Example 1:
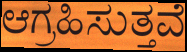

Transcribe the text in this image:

ಆಗ್ರಹಿಸುತ್ತವೆ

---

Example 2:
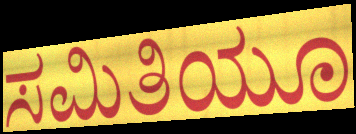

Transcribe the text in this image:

ಸಮಿತಿಯೂ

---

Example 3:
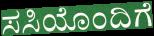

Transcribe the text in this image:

ಸಸಿಯೊಂದಿಗೆ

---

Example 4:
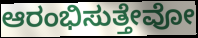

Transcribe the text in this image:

ಆರಂಭಿಸುತ್ತೇವೋ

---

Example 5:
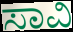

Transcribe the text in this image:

ಸಾವಿ